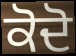
ਕੋਦੋ